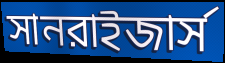
সানরাইজার্স